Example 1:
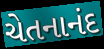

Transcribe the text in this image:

ચેતનાનંદ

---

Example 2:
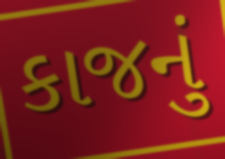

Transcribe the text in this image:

કાજનું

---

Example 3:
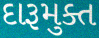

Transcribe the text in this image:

દારૂમુક્ત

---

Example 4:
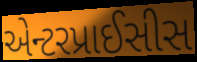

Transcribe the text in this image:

એન્ટરપ્રાઈસીસ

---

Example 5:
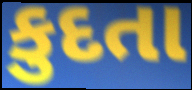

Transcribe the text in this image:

કુદતા